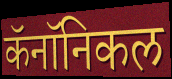
कॅनॉनिकल